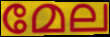
മേല